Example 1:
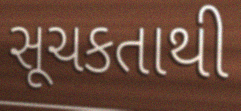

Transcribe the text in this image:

સૂચકતાથી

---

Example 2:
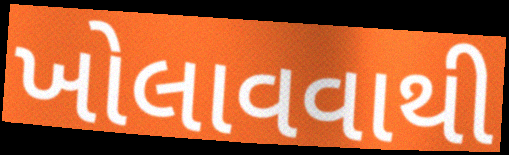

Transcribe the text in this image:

ખોલાવવાથી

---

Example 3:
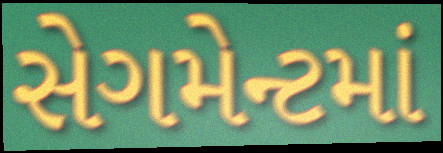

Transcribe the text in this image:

સેગમેન્ટમાં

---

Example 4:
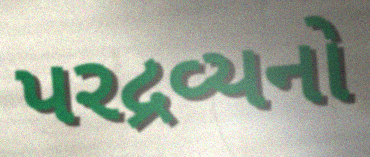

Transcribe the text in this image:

પરદ્રવ્યનો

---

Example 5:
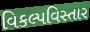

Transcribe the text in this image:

વિકલ્પવિસ્તાર